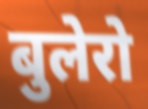
बुलेरो